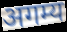
अगम्य